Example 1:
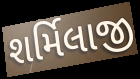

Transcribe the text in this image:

શર્મિલાજી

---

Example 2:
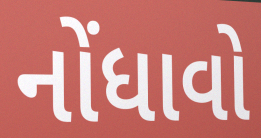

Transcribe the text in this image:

નોંધાવો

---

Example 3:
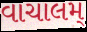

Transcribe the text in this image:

વાચાલમ્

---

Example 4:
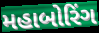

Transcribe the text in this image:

મહાબોરિંગ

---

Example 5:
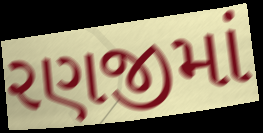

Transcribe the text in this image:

રણજીમાં